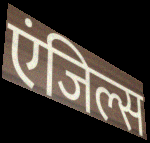
एंजिल्‍स